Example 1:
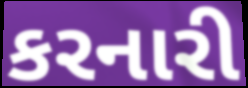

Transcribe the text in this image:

કરનારી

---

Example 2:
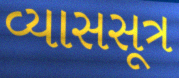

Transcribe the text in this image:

વ્યાસસૂત્ર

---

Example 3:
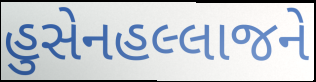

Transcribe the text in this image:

હુસેનહલ્લાજને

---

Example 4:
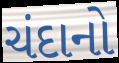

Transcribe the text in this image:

ચંદાનો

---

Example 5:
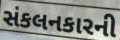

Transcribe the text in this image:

સંકલનકારની